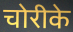
चोरीके